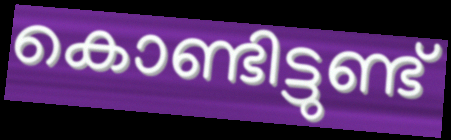
കൊണ്ടിട്ടുണ്ട്